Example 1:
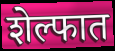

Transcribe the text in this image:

शेल्फात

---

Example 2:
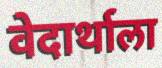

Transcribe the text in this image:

वेदार्थाला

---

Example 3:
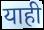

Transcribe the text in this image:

याही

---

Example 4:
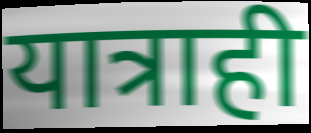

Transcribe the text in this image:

यात्राही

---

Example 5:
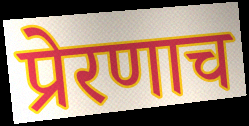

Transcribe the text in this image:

प्रेरणाच